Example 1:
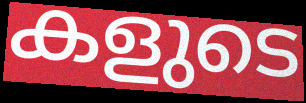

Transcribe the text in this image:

കളുടെ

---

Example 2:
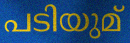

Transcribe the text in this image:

പടിയുമ്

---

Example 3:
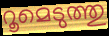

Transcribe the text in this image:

റൂമെടുത്തു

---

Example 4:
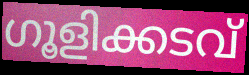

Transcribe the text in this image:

ഗൂളിക്കടവ്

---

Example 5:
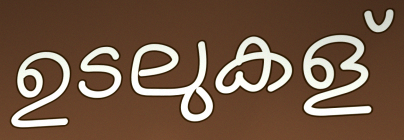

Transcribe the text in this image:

ഉടലുകള്